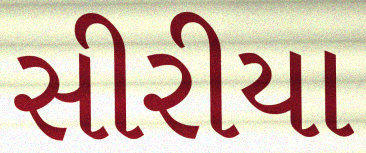
સીરીયા